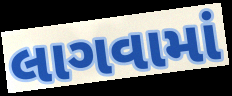
લાગવામાં